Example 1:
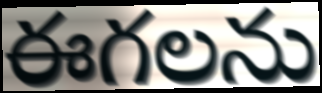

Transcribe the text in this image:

ఈగలను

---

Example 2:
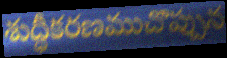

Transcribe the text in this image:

శుద్ధీకరణముచొప్పున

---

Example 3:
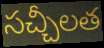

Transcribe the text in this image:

సచ్చీలత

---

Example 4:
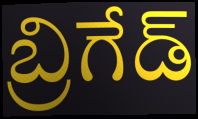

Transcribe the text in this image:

బ్రిగేడ్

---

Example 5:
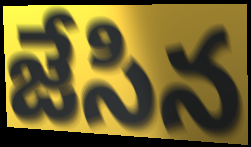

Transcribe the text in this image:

జేసిన